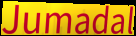
Jumadal